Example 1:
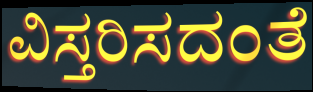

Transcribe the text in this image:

ವಿಸ್ತರಿಸದಂತೆ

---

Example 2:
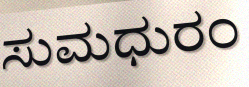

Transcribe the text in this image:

ಸುಮಧುರಂ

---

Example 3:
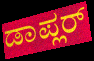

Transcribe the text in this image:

ಡಾಪ್ಲರ್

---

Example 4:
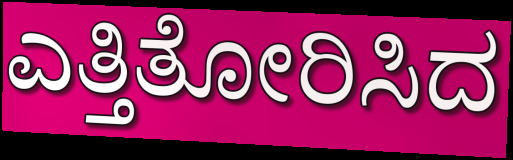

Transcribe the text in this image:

ಎತ್ತಿತೋರಿಸಿದ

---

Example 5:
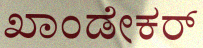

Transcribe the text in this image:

ಖಾಂಡೇಕರ್